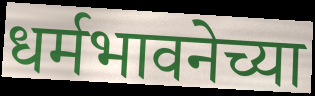
धर्मभावनेच्या